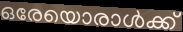
ഒരേയൊരാൾക്ക്